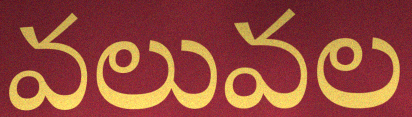
వలువల